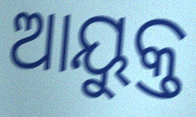
ଆୟୁକ୍ତ